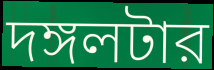
দঙ্গলটার